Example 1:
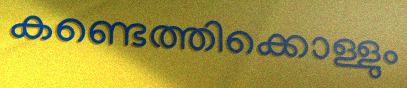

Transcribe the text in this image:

കണ്ടെത്തിക്കൊള്ളും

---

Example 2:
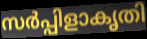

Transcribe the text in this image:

സർപ്പിളാകൃതി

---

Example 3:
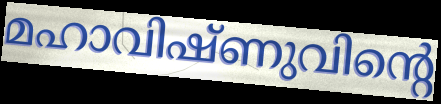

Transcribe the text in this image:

മഹാവിഷ്ണുവിന്റെ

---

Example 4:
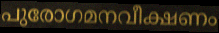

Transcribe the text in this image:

പുരോഗമനവീക്ഷണം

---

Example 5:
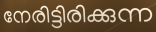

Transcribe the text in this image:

നേരിട്ടിരിക്കുന്ന